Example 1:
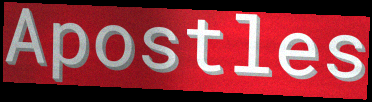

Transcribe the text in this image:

Apostles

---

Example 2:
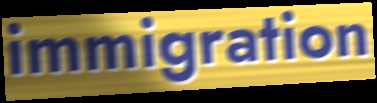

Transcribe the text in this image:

immigration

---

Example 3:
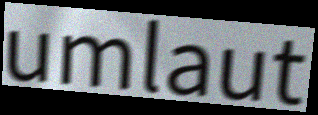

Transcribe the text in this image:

umlaut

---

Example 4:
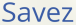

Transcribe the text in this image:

Savez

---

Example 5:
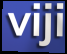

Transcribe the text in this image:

viji